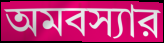
অমবস্যার